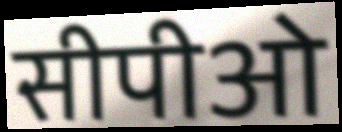
सीपीओ